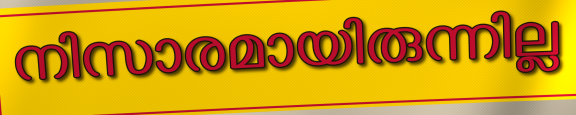
നിസാരമായിരുന്നില്ല